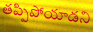
తప్పిపోయాడని